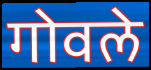
गोवले